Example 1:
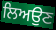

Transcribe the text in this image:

ਲਿਅਉਣ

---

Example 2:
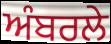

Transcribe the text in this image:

ਅੰਬਰਲੇ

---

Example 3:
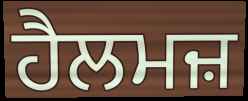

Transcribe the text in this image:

ਹੈਲਮਜ਼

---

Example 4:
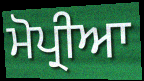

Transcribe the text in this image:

ਮੋਪ੍ਰੀਆ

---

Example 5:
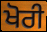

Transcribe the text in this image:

ਖੋਰੀ